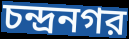
চন্দ্রনগর